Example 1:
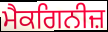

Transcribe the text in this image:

ਮੈਕਗਿਨੀਜ਼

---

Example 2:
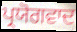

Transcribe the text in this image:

ਪ੍ਰਯੋਗਵਾਦ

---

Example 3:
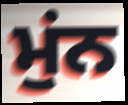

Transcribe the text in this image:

ਮੁਂਨ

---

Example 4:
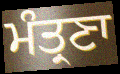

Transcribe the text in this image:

ਮੰਤ੍ਰਣਾ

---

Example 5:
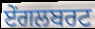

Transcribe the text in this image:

ਏਂਗਲਬਰਟ